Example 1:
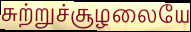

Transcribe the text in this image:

சுற்றுச்சூழலையே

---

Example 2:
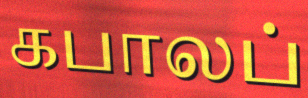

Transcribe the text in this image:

கபாலப்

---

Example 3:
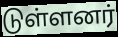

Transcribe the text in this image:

டுள்ளனர்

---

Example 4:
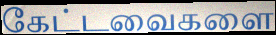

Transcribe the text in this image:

கேட்டவைகளை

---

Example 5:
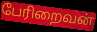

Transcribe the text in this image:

பேரிறைவன்